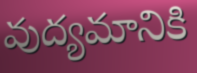
వుద్యమానికి